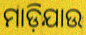
ମାଡ଼ିଯାଉ